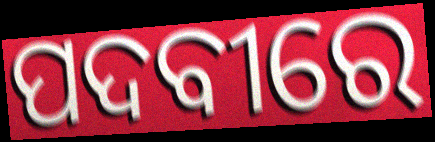
ପଦବୀରେ